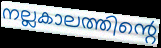
നല്ലകാലത്തിന്റെ